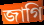
জাগি